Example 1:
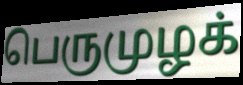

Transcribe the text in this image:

பெருமுழக்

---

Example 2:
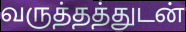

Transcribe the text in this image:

வருத்தத்துடன்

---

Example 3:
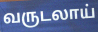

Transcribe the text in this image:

வருடலாய்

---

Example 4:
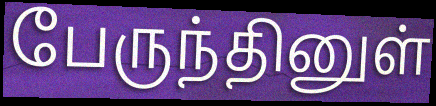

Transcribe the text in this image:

பேருந்தினுள்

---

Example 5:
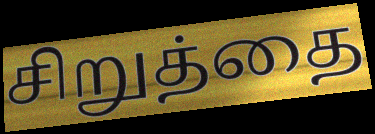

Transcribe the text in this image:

சிறுத்தை